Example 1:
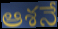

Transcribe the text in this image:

ఆశనే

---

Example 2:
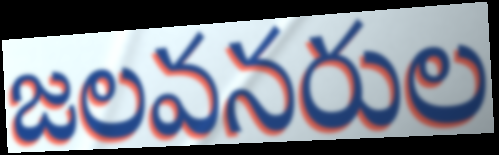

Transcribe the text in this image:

జలవనరుల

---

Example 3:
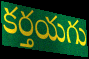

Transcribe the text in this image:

కర్తయగు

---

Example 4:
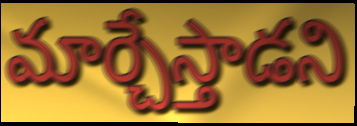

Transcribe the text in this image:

మార్చేస్తాడని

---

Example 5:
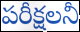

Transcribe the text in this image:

పరీక్షలనీ